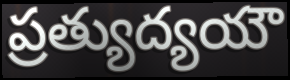
ప్రత్యుద్యయౌ